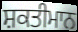
ਸ਼ਕਤੀਮਾਨ